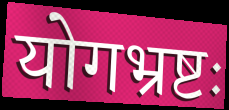
योगभ्रष्टः